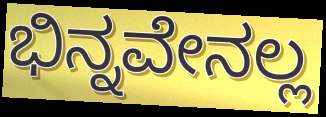
ಭಿನ್ನವೇನಲ್ಲ